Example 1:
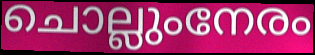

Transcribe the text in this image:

ചൊല്ലുംനേരം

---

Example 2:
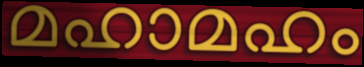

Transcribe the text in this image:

മഹാമഹം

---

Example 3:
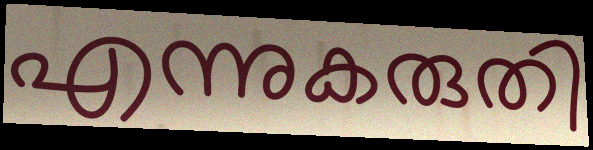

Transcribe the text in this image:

എന്നുകരുതി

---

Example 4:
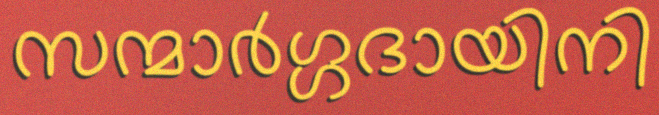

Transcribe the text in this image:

സന്മാർഗ്ഗദായിനി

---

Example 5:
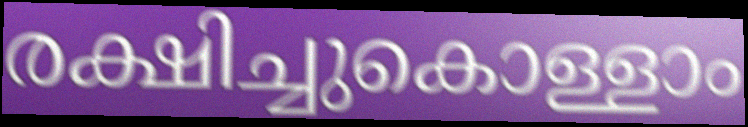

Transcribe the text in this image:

രക്ഷിച്ചുകൊള്ളാം